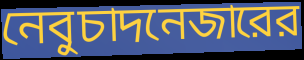
নেবুচাদনেজারের